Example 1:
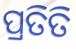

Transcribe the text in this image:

ପ୍ରତିତି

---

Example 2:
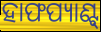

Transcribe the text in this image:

ହାଫପ୍ୟାଣ୍ଟ୍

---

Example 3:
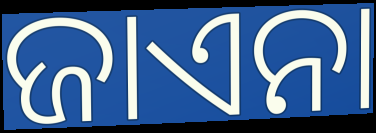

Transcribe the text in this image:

ଜାଏନା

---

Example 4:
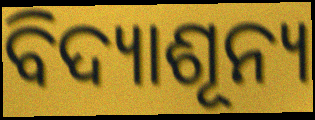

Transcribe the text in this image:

ବିଦ୍ୟାଶୂନ୍ୟ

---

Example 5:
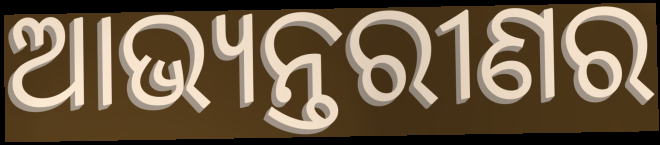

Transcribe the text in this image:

ଆଭ୍ୟନ୍ତରୀଣର